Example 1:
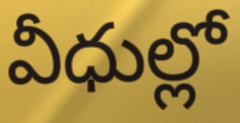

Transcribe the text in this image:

వీధుల్లో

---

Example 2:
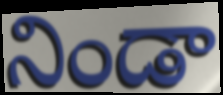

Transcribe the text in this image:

నిండా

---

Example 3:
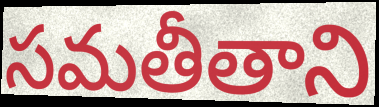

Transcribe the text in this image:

సమతీతాని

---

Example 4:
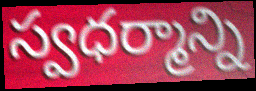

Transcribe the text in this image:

స్వధర్మాన్ని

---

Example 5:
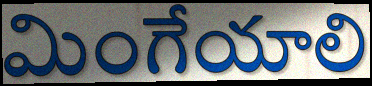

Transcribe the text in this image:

మింగేయాలి